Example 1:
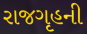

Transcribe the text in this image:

રાજગૃહની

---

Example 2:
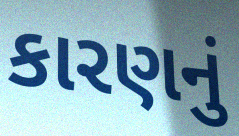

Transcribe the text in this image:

કારણનું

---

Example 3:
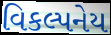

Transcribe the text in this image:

વિકલ્પનેય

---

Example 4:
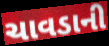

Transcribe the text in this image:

ચાવડાની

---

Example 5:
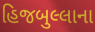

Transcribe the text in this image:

હિજબુલ્લાના